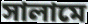
সালামে